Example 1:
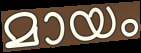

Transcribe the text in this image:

മായം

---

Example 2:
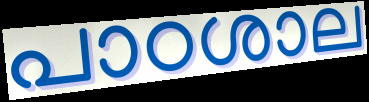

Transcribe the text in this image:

പാഠശാല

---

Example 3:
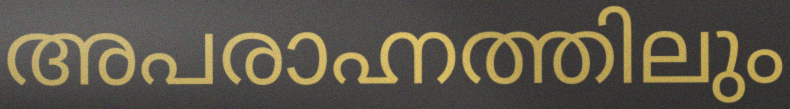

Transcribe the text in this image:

അപരാഹ്നത്തിലും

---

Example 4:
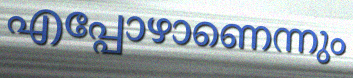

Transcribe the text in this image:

എപ്പോഴാണെന്നും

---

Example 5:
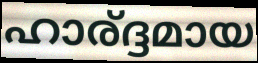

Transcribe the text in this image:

ഹാര്ദ്ദമായ